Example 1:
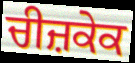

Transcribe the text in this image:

ਚੀਜ਼ਕੇਕ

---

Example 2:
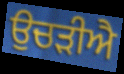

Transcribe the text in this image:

ਉਚੜੀਐ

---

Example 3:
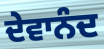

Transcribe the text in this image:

ਦੇਵਾਨੰਦ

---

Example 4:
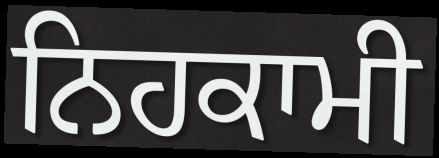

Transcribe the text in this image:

ਨਿਹਕਾਮੀ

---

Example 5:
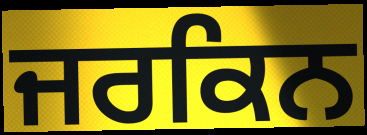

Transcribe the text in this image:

ਜਰਕਿਨ